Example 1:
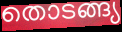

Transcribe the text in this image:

തൊടങ്ങ്യ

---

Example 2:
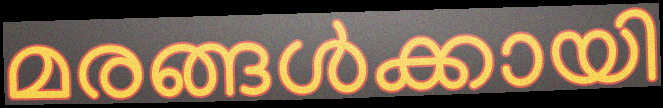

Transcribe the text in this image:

മരങ്ങൾക്കായി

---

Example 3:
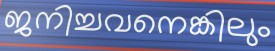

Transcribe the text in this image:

ജനിച്ചവനെങ്കിലും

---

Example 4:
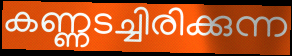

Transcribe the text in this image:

കണ്ണടച്ചിരിക്കുന്ന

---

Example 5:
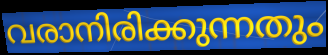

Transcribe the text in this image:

വരാനിരിക്കുന്നതും